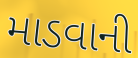
માડવાની